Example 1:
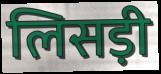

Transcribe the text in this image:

लिसड़ी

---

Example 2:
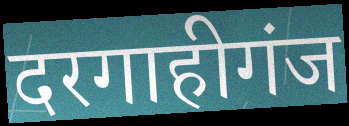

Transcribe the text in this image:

दरगाहीगंज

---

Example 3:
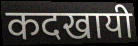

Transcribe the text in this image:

कदखायी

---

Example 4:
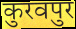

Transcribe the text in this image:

कुरवपुर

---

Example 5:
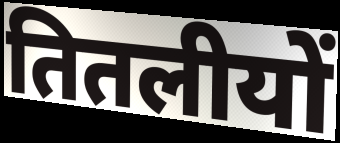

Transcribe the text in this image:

तितलीयों